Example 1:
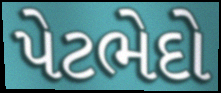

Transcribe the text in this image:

પેટભેદો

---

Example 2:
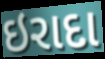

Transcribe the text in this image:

ઇરાદા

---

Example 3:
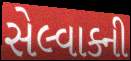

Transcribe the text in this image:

સેલ્વાક્ની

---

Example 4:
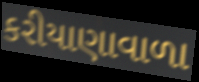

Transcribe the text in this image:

કરીયાણાવાળા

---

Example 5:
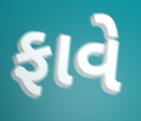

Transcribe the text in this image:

ફાવે